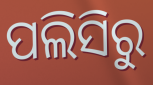
ପଲିସିରୁ